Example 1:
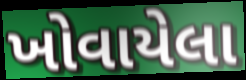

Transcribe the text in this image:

ખોવાયેલા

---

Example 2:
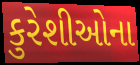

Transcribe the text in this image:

કુરેશીઓના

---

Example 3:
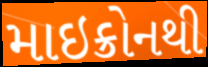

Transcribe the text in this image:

માઇક્રોનથી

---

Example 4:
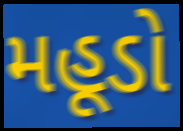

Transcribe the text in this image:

મહૂડો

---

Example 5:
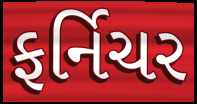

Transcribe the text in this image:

ફર્નિચર